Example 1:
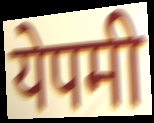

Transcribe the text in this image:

येपमी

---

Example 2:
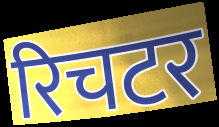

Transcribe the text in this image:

रिचटर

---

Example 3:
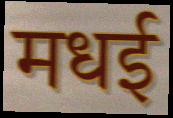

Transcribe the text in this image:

मधई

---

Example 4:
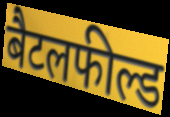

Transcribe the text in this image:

बैटलफील्ड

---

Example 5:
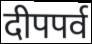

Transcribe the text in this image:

दीपपर्व